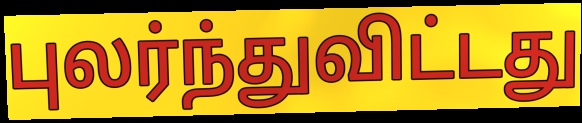
புலர்ந்துவிட்டது